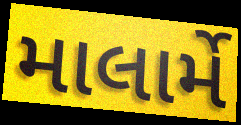
માલાર્મે